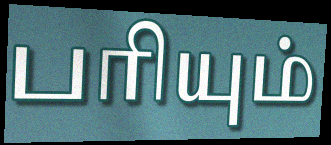
பரியும்